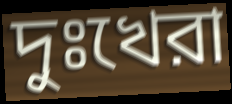
দুঃখেরা